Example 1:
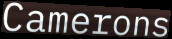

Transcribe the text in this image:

Camerons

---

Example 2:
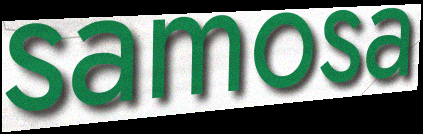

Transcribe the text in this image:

samosa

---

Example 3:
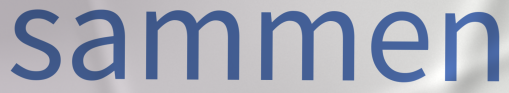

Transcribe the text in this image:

sammen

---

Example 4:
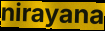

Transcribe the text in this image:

nirayana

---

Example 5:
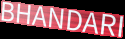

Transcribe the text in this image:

BHANDARI